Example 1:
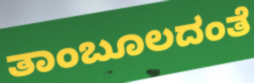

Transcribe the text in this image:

ತಾಂಬೂಲದಂತೆ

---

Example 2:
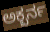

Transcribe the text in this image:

ಅಕ್ಬರ್ನ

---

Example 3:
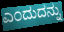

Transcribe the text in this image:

ಎಂದುದನ್ನು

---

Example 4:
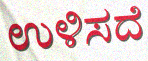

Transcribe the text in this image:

ಉಳಿಸದೆ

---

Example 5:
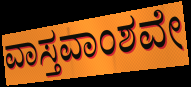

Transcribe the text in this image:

ವಾಸ್ತವಾಂಶವೇ